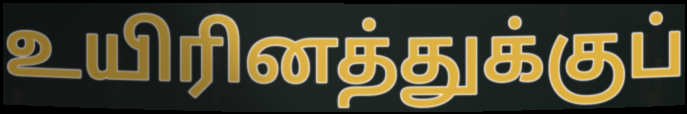
உயிரினத்துக்குப்